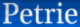
Petrie